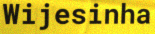
Wijesinha